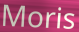
Moris